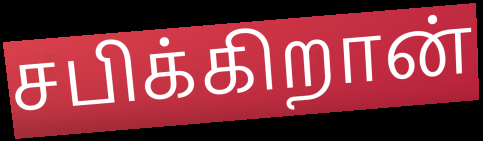
சபிக்கிறான்